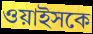
ওয়াইসকে